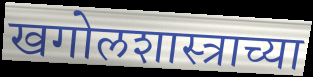
खगोलशास्त्राच्या